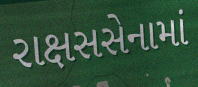
રાક્ષસસેનામાં